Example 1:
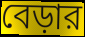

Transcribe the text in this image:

বেড়ার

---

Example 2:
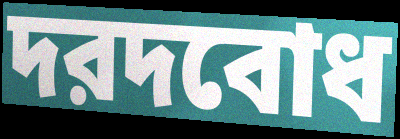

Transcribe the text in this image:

দরদবোধ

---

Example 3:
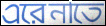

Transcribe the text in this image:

এরেনাতে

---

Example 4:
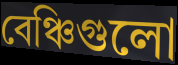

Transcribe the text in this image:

বেঞ্চিগুলো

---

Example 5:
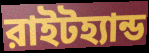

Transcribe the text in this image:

রাইটহ্যান্ড